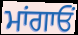
ਮਾਂਗਾਓਂ